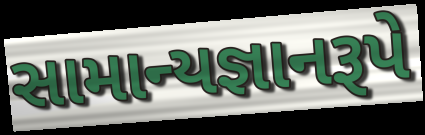
સામાન્યજ્ઞાનરૂપે